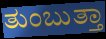
ತುಂಬುತ್ತಾ